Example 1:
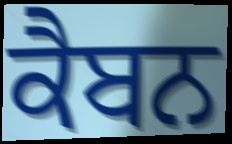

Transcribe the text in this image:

ਕੈਬਨ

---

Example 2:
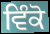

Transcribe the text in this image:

ਵਿੰਕੋ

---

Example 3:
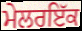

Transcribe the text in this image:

ਮੇਲਰਇੱਕ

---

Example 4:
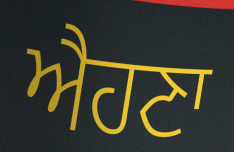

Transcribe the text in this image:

ਐਹਣਾ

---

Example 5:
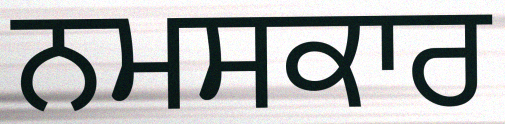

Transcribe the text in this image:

ਨਮਸਕਾਰ